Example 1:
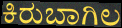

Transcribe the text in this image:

ಕಿರುಬಾಗಿಲ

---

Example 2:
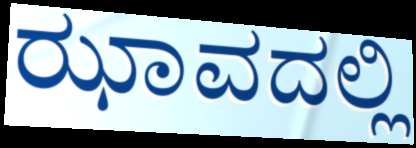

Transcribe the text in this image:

ಝಾವದಲ್ಲಿ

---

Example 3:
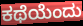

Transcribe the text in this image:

ಕಥೆಯೆಂದು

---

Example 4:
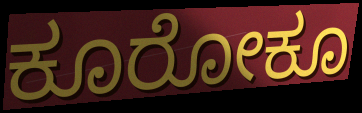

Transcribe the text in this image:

ಕೂರೋಕೂ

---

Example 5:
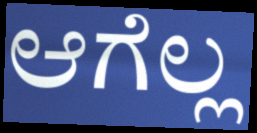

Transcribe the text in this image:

ಆಗೆಲ್ಲ